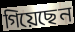
গিয়েছেন